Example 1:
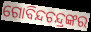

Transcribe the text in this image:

ଗୋବିନ୍ଦଚନ୍ଦ୍ରଙ୍କର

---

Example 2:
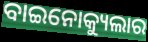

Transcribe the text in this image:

ବାଇନୋକ୍ୟୁଲାର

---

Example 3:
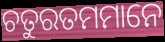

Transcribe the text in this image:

ଚତୁରତମମାନେ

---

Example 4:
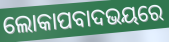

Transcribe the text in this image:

ଲୋକାପବାଦଭୟରେ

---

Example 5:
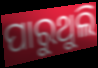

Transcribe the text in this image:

ପାରୁଥୁଲି